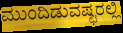
ಮುಂದಿಡುವಷ್ಟರಲ್ಲಿ